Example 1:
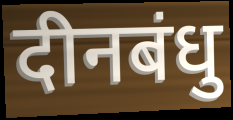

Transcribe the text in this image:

दीनबंधु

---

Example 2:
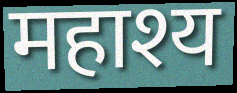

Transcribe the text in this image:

महाश्य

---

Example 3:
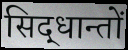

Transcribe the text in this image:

सिद्धान्तों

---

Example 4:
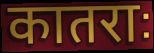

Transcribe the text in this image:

कातराः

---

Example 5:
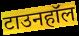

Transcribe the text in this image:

टाउनहॉल